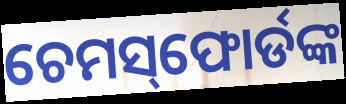
ଚେମସ୍‌ଫୋର୍ଡଙ୍କ